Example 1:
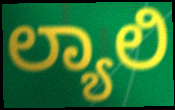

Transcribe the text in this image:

ಲ್ಯಾಲಿ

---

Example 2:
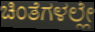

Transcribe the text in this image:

ಚಿಂತೆಗಳಲ್ಲೇ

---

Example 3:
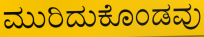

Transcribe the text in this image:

ಮುರಿದುಕೊಂಡವು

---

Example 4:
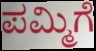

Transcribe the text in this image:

ಪಮ್ಮಿಗೆ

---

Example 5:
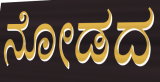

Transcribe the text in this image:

ನೋಡದ